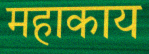
महाकाय